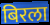
बिरला